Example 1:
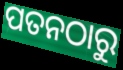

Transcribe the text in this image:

ପତନଠାରୁ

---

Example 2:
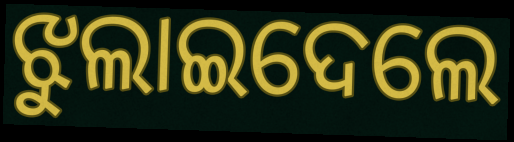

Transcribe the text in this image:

ଝୁଲାଇଦେଲେ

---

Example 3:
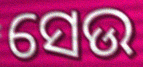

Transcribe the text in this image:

ସେଉ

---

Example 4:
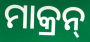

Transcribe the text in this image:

ମାକ୍ରନ୍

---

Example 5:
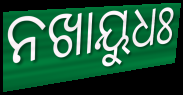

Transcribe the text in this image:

ନଖାୟୁଧଃ